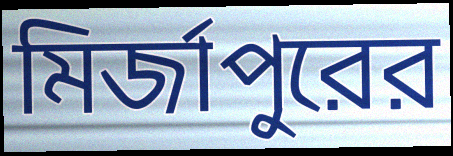
মির্জাপুরের